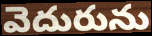
వెదురును